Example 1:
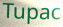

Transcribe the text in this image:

Tupac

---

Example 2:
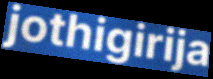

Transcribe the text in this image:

jothigirija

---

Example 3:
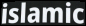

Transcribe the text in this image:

islamic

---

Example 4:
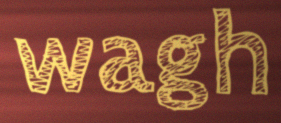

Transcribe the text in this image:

wagh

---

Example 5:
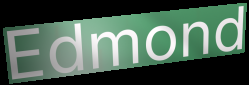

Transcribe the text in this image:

Edmond